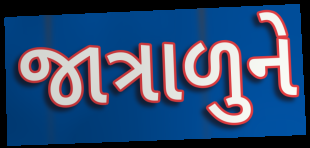
જાત્રાળુને